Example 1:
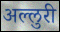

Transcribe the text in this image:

अल्लुरी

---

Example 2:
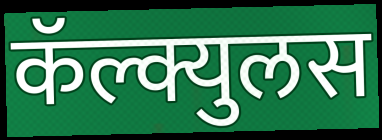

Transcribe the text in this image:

कॅल्क्युलस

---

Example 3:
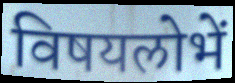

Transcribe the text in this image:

विषयलोभें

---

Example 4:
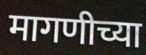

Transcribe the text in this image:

मागणीच्या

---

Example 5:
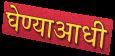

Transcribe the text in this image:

घेण्याआधी